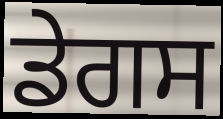
ਡੇਗਸ